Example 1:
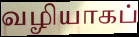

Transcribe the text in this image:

வழியாகப்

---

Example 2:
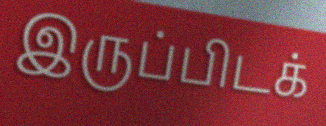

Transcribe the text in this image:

இருப்பிடக்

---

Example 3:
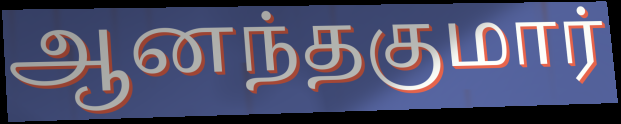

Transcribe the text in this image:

ஆனந்தகுமார்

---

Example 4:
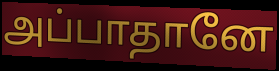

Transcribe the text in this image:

அப்பாதானே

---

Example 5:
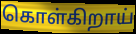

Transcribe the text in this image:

கொள்கிறாய்